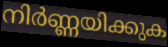
നിർണ്ണയിക്കുക